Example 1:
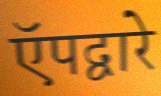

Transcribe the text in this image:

ऍपद्वारे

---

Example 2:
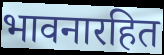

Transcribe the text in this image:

भावनारहित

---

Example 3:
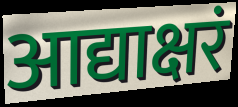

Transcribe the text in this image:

आद्याक्षरं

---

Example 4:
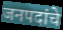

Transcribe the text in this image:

जनपदांचे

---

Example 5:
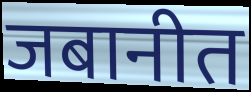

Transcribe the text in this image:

जबानीत